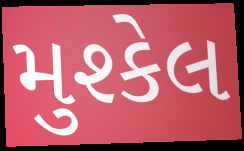
મુશ્કેલ